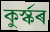
কুৰ্স্কৰ